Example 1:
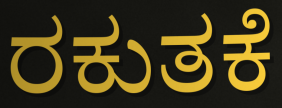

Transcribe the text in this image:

ರಕುತಕೆ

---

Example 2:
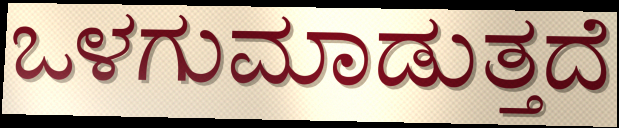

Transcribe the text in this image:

ಒಳಗುಮಾಡುತ್ತದೆ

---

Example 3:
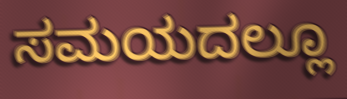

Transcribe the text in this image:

ಸಮಯದಲ್ಲೂ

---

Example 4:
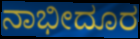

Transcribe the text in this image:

ನಾಭೀದೂರ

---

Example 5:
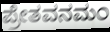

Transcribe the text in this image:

ಪ್ರೇತವನಮಂ